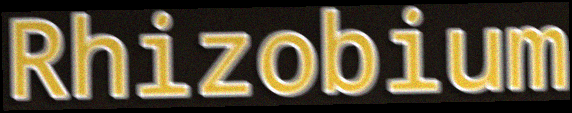
Rhizobium